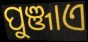
ପୁଞ୍ଜାଏ